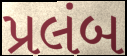
પ્રલંબ